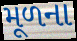
મૂળના